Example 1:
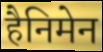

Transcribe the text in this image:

हैनिमेन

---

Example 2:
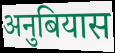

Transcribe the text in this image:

अनुबियास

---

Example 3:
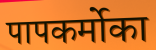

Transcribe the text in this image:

पापकर्मोका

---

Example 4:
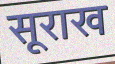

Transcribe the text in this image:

सूराख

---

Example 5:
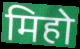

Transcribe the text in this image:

मिहो